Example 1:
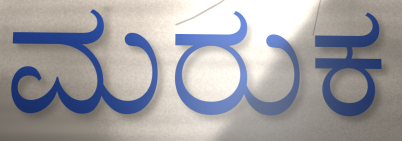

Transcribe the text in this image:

ಮರುಕ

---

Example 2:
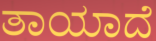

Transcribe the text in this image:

ತಾಯಾದೆ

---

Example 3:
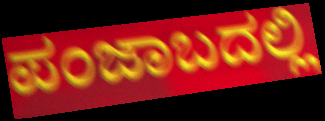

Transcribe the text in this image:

ಪಂಜಾಬದಲ್ಲಿ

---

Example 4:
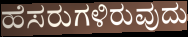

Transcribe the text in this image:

ಹೆಸರುಗಳಿರುವುದು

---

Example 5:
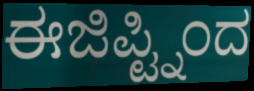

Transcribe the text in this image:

ಈಜಿಪ್ಟ್ನಿಂದ